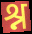
श्न